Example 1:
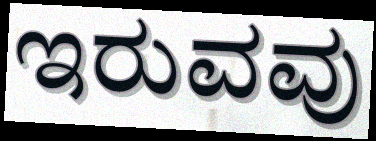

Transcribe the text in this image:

ಇರುವವು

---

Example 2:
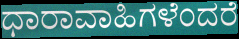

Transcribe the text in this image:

ಧಾರಾವಾಹಿಗಳೆಂದರೆ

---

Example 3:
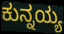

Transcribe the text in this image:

ಕುನ್ನಯ್ಯ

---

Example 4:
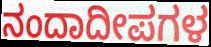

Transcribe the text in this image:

ನಂದಾದೀಪಗಳ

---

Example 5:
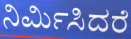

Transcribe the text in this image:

ನಿರ್ಮಿಸಿದರೆ